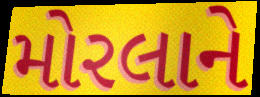
મોરલાને